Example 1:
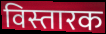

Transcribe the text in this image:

विस्तारक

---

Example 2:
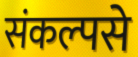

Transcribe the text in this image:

संकल्पसे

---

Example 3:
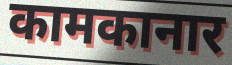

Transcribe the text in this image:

कामकानार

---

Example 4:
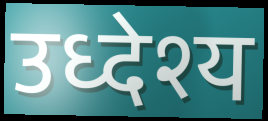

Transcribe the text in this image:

उध्देश्य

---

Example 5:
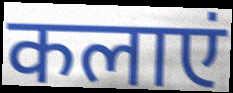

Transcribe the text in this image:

कलाएं